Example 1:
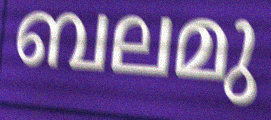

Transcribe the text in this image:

ബലമു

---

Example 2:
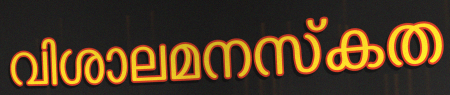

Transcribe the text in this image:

വിശാലമനസ്‌കത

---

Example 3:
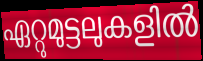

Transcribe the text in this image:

ഏറ്റുമുട്ടലുകളിൽ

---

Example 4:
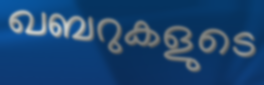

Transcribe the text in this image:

ഖബറുകളുടെ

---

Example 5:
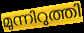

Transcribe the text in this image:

മുന്നിറുത്തി